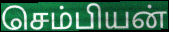
செம்பியன்